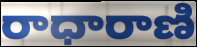
రాధారాణి